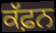
ਕੱਫ਼ਨ